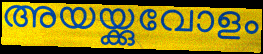
അയയ്ക്കുവോളം